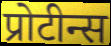
प्रोटीन्स